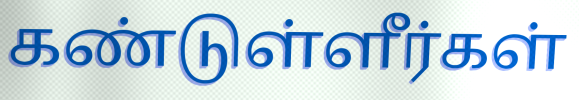
கண்டுள்ளீர்கள்